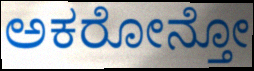
ಅಕರೋನ್ತೋ